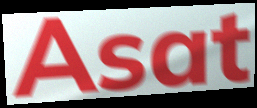
Asat